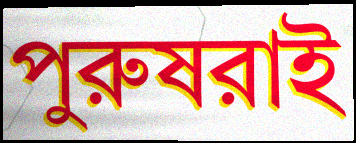
পুরুষরাই